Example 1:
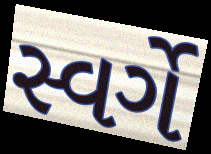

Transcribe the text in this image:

સ્વર્ગે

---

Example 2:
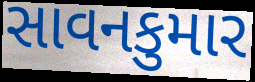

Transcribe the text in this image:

સાવનકુમાર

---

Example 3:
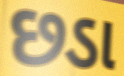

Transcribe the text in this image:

છડા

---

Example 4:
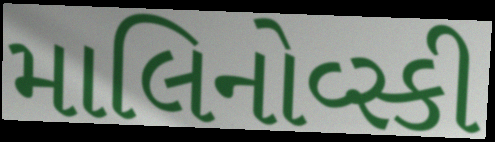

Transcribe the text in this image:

માલિનોવ્સ્કી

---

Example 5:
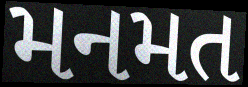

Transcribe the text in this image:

મનમત